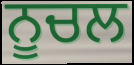
ਨੂਚਲ